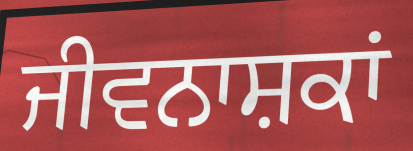
ਜੀਵਨਾਸ਼ਕਾਂ